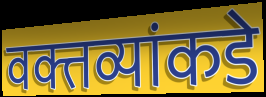
वक्तव्यांकडे